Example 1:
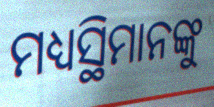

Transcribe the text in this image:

ମଧ୍ୟସ୍ଥିମାନଙ୍କୁ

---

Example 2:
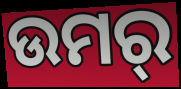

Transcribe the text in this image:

ଉମର୍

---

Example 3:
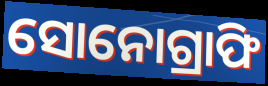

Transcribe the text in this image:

ସୋନୋଗ୍ରାଫି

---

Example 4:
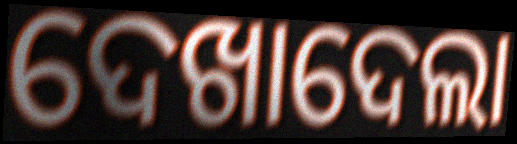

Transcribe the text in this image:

ଦେଖାଦେଲା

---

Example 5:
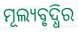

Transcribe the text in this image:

ମୂଲ୍ୟବୃଦ୍ଧିର